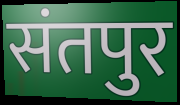
संतपुर